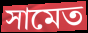
সামেত